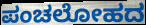
ಪಂಚಲೋಹದ